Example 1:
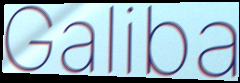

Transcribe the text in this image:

Galiba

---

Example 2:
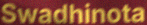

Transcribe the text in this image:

Swadhinota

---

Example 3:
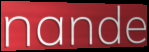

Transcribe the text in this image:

nande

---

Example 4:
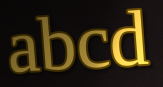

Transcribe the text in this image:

abcd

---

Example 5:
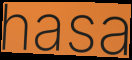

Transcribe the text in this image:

hasa